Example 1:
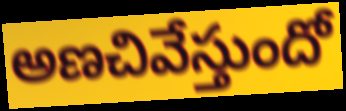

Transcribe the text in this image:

అణచివేస్తుందో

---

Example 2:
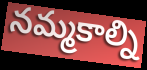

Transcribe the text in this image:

నమ్మకాల్ని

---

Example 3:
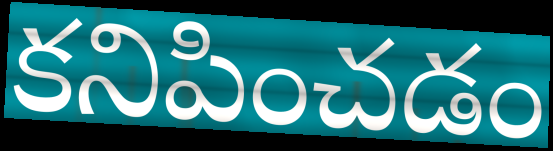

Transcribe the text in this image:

కనిపించడం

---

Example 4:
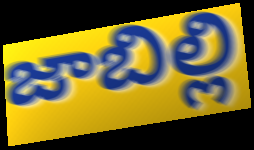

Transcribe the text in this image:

జాబిల్లి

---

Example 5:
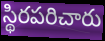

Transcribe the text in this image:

స్థిరపరిచారు